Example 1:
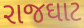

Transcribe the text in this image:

રાજઘાટ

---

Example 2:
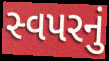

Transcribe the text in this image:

સ્વપરનું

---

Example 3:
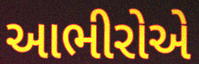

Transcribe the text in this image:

આભીરોએ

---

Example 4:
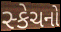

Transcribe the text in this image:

સ્કેચનો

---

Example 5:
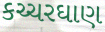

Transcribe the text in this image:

કચ્ચરઘાણ